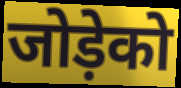
जोड़ेको